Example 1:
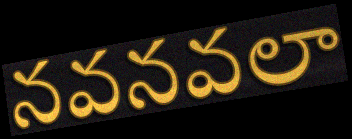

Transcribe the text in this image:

నవనవలా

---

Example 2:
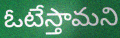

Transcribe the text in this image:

ఓటేస్తామని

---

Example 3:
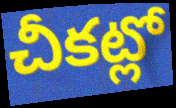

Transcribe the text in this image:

చీకట్లో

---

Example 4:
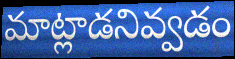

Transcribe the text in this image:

మాట్లాడనివ్వడం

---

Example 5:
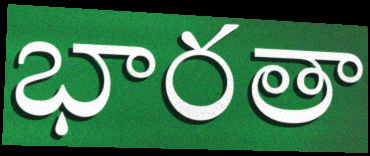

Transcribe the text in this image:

భారతా